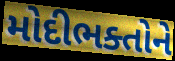
મોદીભક્તોને